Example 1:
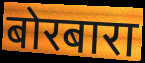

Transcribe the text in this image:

बोरबारा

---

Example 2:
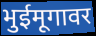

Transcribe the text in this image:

भुईमूगावर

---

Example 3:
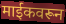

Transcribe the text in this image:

माईकवरून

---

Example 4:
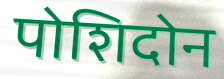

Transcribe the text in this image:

पोशिदोन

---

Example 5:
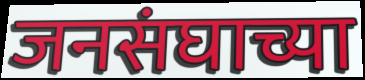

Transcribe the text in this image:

जनसंघाच्या